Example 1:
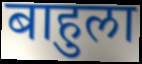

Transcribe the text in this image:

बाहुला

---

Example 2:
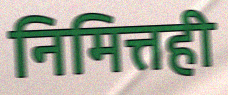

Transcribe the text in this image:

निमित्तही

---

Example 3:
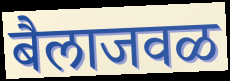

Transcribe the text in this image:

बैलाजवळ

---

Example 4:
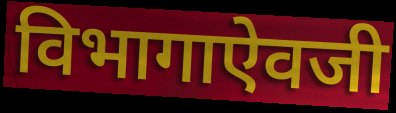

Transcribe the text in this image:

विभागाऐवजी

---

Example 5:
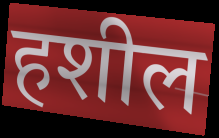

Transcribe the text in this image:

हशील